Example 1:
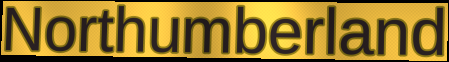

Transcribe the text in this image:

Northumberland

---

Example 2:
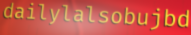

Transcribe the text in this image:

dailylalsobujbd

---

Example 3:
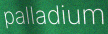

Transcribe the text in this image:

palladium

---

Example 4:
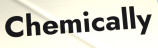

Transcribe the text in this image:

Chemically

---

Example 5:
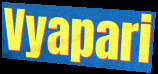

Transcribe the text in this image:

Vyapari